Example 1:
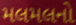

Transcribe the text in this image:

મલમલનો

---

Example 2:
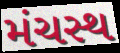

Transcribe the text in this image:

મંચસ્થ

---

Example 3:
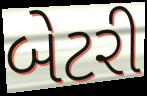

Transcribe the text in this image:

બેટરી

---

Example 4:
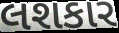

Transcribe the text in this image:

લશકાર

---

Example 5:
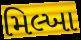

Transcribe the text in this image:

મિલ્ખા